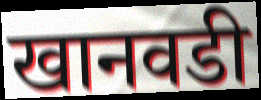
खानवडी